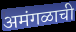
अमंगळाची